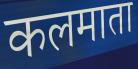
कलमाता